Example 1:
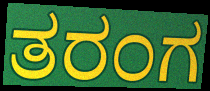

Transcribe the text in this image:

ತರಂಗ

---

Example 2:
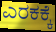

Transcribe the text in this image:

ಎರಕಕ್ಕೆ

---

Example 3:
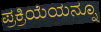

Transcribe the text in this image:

ಪ್ರಕ್ರಿಯೆಯನ್ನೂ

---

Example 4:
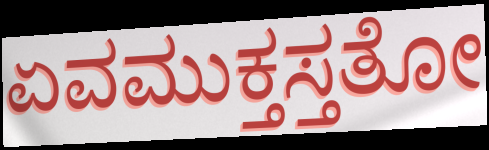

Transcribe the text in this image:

ಏವಮುಕ್ತಸ್ತತೋ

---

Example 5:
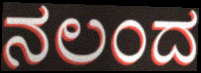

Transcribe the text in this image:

ನಲಂದ